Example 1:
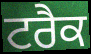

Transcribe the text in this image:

ਟਰੈਕ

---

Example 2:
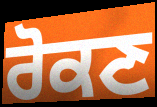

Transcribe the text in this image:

ਰੋਕਣ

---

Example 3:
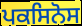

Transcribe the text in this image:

ਪਕਸਿਨੋਸ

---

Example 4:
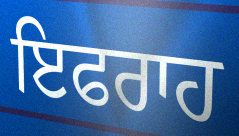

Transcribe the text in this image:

ਇਫਰਾਹ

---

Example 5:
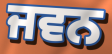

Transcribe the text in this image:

ਜਵਨ